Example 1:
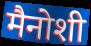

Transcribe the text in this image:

मैनोशी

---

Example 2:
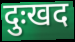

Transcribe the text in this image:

दुःखद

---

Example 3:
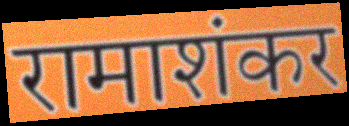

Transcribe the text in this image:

रामाशंकर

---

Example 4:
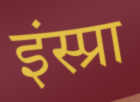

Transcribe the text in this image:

इंस्प्रा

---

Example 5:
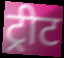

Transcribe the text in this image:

ट्रीट